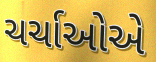
ચર્ચાઓએ